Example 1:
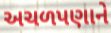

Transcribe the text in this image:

અચળપણાને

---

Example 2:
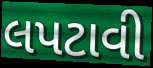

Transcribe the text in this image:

લપટાવી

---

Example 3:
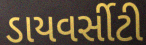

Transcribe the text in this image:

ડાયવર્સીટી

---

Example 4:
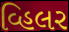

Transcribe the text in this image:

વ્હિલર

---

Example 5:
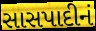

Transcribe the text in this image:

સાસપાદીનં